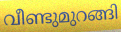
വീണ്ടുമുറങ്ങി